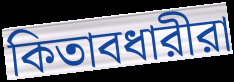
কিতাবধারীরা